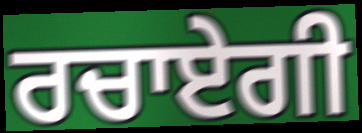
ਰਚਾਏਗੀ